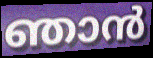
ഞാൻ